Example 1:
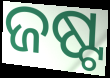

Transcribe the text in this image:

ଜଷ୍ଟ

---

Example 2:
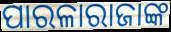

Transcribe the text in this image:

ପାରଳାରାଜାଙ୍କ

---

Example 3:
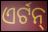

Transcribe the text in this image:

ଏର୍ଟନ୍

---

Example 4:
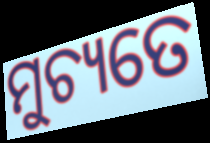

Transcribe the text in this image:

ମୁଚ୍ୟତେ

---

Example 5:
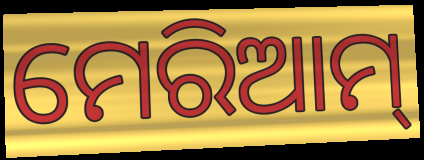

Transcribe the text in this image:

ମେରିଆମ୍